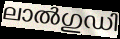
ലാൽഗുഡി